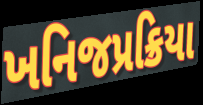
ખનિજપ્રક્રિયા